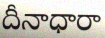
దీనాధారా